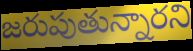
జరుపుతున్నారని